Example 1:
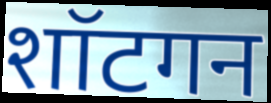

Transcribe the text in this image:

शॉटगन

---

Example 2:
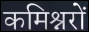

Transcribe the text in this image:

कमिश्नरों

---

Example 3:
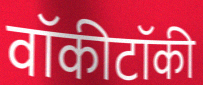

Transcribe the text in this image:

वॉकीटॉकी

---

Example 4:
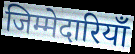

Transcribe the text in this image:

जिम्मेदारियाँ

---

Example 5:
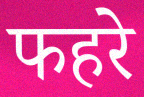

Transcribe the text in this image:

फहरे